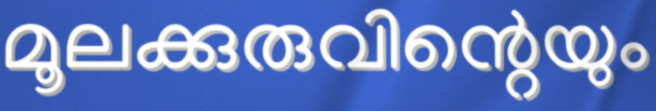
മൂലക്കുരുവിന്റെയും